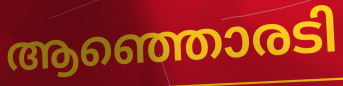
ആഞ്ഞൊരടി